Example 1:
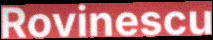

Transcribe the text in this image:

Rovinescu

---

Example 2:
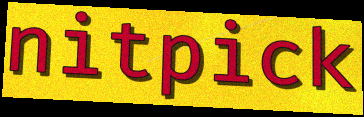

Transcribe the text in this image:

nitpick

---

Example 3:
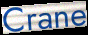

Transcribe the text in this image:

Crane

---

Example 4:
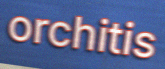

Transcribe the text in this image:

orchitis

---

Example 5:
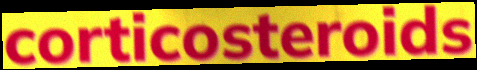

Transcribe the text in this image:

corticosteroids